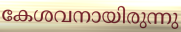
കേശവനായിരുന്നു